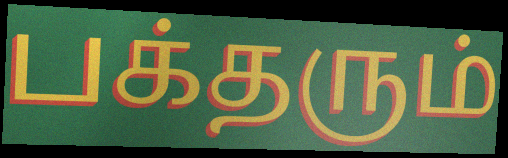
பக்தரும்